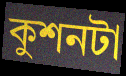
কুশনটা